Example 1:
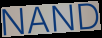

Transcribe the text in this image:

NAND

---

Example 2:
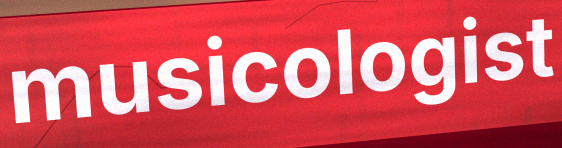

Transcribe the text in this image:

musicologist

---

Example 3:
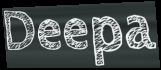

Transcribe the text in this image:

Deepa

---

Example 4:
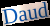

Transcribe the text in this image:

Daud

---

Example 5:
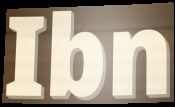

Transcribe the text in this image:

Ibn